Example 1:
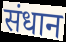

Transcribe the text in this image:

संधान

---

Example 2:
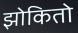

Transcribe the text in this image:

झोकितो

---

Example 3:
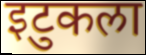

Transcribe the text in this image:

इटुकला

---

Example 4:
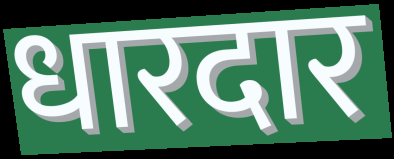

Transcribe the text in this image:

धारदार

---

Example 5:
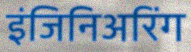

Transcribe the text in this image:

इंजिनिअरिंग